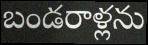
బండరాళ్లను